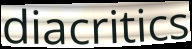
diacritics